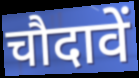
चौदावें